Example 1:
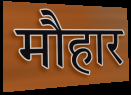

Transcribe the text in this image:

मौहार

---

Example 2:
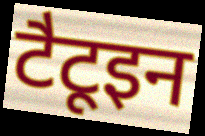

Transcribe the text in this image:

टैटूइन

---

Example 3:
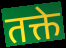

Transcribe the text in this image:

तक्ते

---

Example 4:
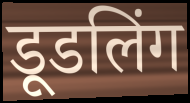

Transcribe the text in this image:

डूडलिंग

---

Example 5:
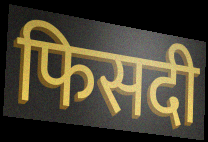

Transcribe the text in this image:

फिसदी